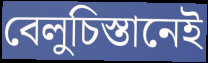
বেলুচিস্তানেই